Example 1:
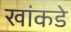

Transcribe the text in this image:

खांकडे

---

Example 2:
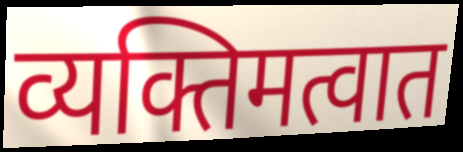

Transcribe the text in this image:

व्यक्तिमत्वात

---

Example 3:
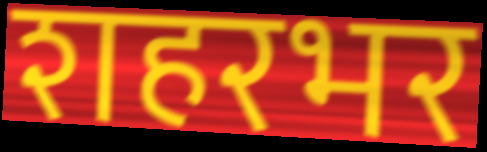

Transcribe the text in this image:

शहरभर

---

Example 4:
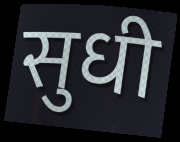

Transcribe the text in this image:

सुधी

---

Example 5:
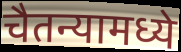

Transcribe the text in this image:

चैतन्यामध्ये